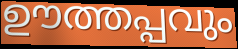
ഊത്തപ്പവും